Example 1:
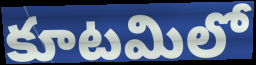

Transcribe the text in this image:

కూటమిలో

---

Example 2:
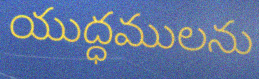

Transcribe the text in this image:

యుద్ధములను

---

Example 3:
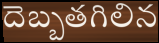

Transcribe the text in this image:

దెబ్బతగిలిన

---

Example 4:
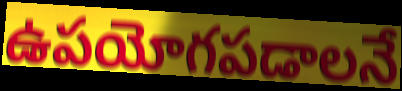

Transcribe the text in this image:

ఉపయోగపడాలనే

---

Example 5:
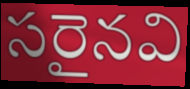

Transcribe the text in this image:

సరైనవి